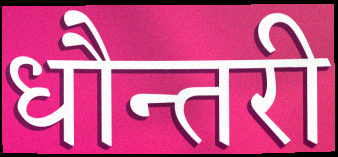
धौन्तरी